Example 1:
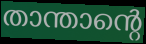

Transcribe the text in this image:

താന്താന്റെ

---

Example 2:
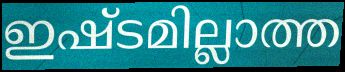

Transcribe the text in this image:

ഇഷ്ടമില്ലാത്ത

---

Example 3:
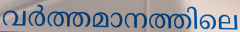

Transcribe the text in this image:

വർത്തമാനത്തിലെ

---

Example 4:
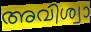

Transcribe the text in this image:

അവിശ്വാ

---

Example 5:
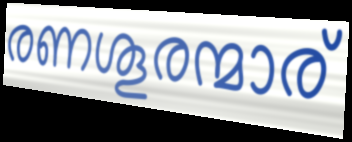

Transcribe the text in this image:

രണശൂരന്മാര്